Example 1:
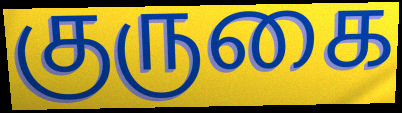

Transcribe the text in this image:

குருகை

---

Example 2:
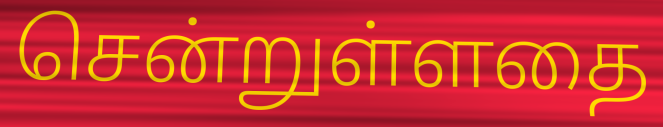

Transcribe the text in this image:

சென்றுள்ளதை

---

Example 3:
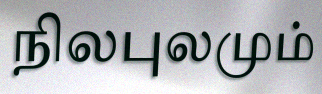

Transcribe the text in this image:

நிலபுலமும்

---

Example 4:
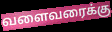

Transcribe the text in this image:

வளைவரைக்கு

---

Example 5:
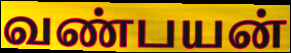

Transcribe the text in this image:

வண்பயன்